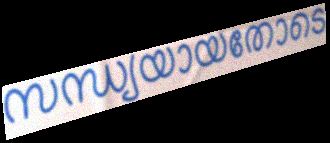
സന്ധ്യയായതോടെ